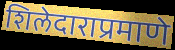
शिलेदाराप्रमाणे